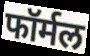
फॉर्मल